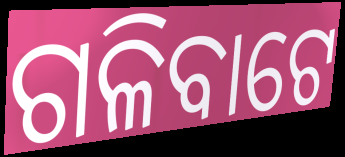
ଗଳିବାଟେ